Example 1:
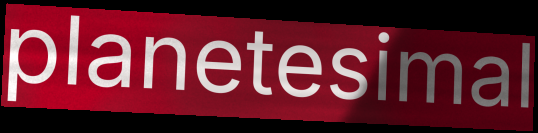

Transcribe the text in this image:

planetesimal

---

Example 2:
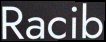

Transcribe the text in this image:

Racib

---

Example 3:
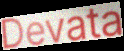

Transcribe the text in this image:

Devata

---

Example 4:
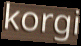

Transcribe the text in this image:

korgi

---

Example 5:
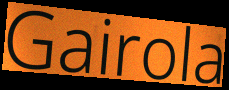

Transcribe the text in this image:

Gairola